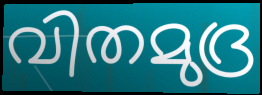
വിതമുദ്ര